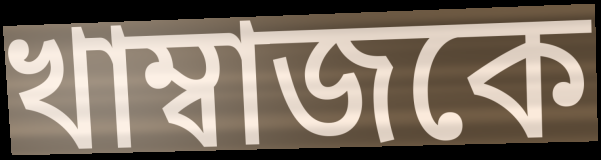
খাম্বাজকে